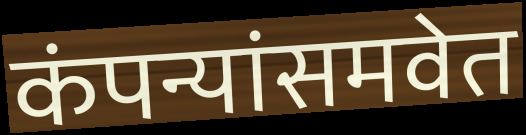
कंपन्यांसमवेत